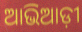
ଆଭିଆଡ଼ୀ